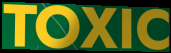
TOXIC